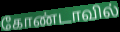
கோண்டாவில்